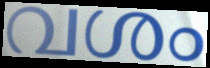
വശം